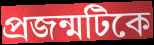
প্রজন্মটিকে